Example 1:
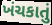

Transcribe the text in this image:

ખંચકાતું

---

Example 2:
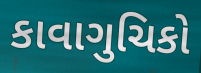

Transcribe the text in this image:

કાવાગુચિકો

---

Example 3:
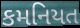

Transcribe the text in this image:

કમનિયત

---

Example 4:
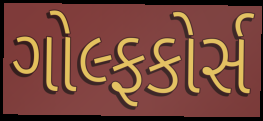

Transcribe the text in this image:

ગોલ્ફકોર્સ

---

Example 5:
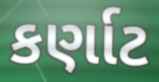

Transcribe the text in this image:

કર્ણાટ